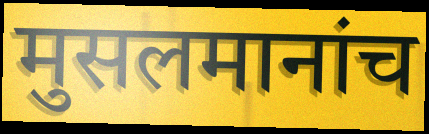
मुसलमानांच